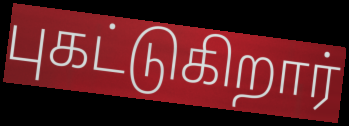
புகட்டுகிறார்